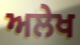
ਅਲੇਖ